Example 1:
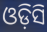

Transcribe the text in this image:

ଓଡ଼ିସି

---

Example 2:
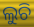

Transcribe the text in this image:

ଲୁଚି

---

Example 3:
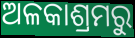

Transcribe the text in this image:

ଅଳକାଶ୍ରମରୁ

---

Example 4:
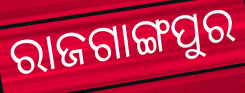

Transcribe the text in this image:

ରାଜଗାଙ୍ଗପୁର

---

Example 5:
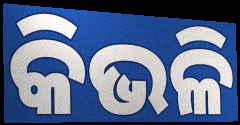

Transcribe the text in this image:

କିଭଳି